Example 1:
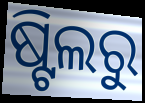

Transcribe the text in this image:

ଷ୍ଟିଲରୁ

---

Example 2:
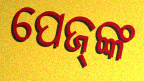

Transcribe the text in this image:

ପେଜ୍‌ଙ୍କ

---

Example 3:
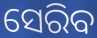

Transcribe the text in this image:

ସେରିବ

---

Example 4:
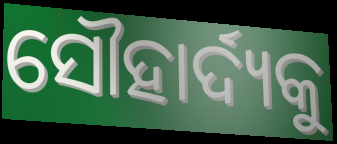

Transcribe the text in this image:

ସୌହାର୍ଦ୍ୟକୁ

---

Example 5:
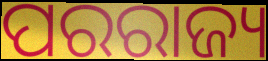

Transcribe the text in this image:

ପରରାଜ୍ୟ